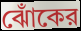
ঝোঁকের